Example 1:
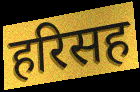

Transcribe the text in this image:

हरिसह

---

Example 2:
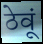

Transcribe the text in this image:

ठेवूं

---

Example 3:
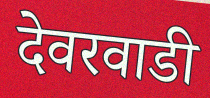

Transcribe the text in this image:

देवरवाडी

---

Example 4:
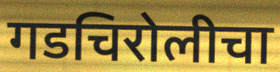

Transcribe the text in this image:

गडचिरोलीचा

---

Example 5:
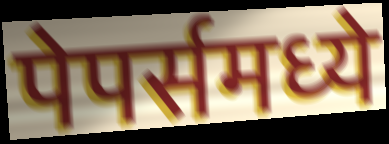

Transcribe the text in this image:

पेपर्समध्ये